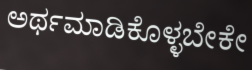
ಅರ್ಥಮಾಡಿಕೊಳ್ಳಬೇಕೇ